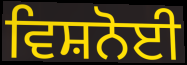
ਵਿਸ਼ਨੋਈ